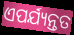
ଏପର୍ଯ୍ୟନ୍ତତ